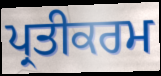
ਪ੍ਰਤੀਕਰਮ